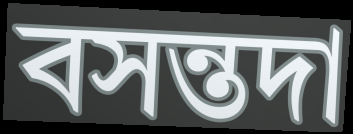
বসন্তদা